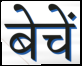
बेचें